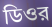
ডিওর